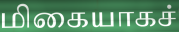
மிகையாகச்